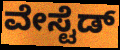
ವೇಸ್ಟೆಡ್